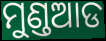
ମୁଣ୍ଡଆଡ